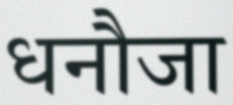
धनौजा